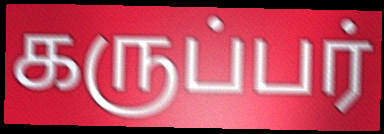
கருப்பர்